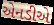
એનડીએ